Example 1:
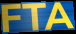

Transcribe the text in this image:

FTA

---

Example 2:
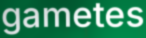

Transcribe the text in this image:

gametes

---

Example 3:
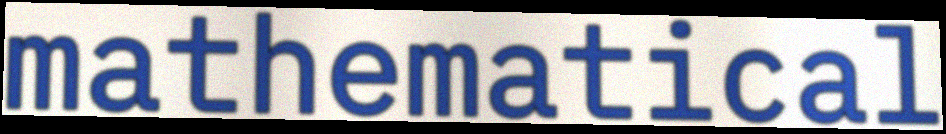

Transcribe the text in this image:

mathematical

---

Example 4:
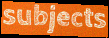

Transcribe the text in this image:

subjects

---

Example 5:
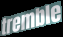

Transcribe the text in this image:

tremble